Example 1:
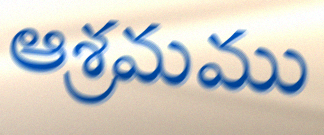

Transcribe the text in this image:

ఆశ్రమము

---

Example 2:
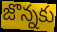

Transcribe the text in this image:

జొన్నకు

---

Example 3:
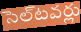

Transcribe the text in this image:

సెల్‌టవర్లు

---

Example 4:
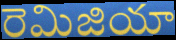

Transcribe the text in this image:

రెమిజియా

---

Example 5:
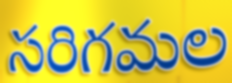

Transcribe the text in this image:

సరిగమల